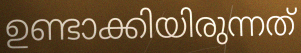
ഉണ്ടാക്കിയിരുന്നത്